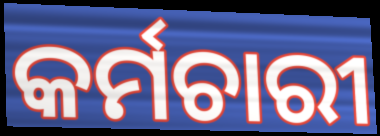
କର୍ମଚାରୀ